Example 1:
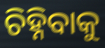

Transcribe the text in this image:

ଚିହ୍ନିବାକୁ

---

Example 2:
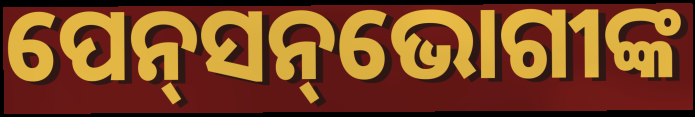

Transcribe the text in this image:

ପେନ୍‌ସନ୍‌ଭୋଗୀଙ୍କ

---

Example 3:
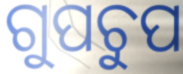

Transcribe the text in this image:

ଗୁପଚୁପ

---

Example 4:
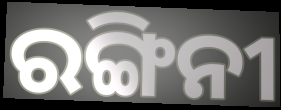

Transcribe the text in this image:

ରଙ୍ଗିନୀ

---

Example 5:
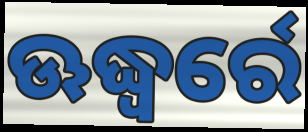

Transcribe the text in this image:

ଊଦ୍ଧ୍ୱର୍ରେ